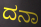
ದನಾ